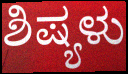
ಶಿಷ್ಯಳು